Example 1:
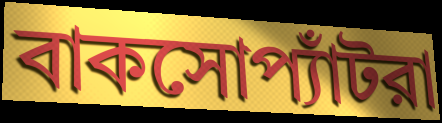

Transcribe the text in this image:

বাকসোপ্যাঁটরা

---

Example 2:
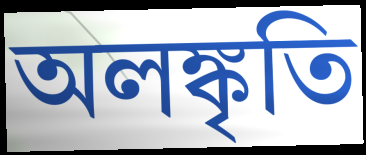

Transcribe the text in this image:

অলঙ্কৃতি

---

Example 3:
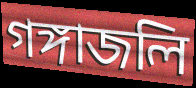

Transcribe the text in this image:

গঙ্গাজলি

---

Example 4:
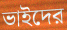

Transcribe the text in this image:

ভাইদের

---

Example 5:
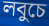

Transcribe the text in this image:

লবুচে